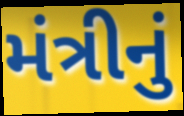
મંત્રીનું